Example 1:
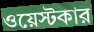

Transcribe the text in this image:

ওয়েস্টকার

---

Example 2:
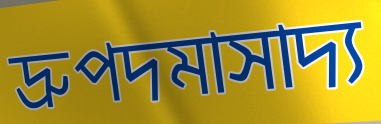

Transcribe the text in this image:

দ্রুপদমাসাদ্য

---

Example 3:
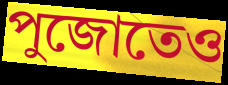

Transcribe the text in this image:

পুজোতেও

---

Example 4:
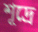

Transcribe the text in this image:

শূদ্রে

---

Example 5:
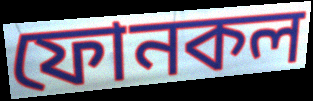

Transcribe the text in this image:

ফোনকল